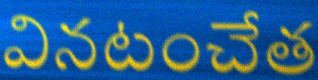
వినటంచేత